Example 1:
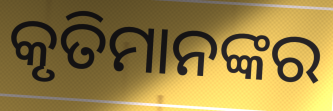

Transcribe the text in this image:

କୃତିମାନଙ୍କର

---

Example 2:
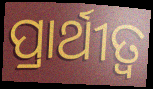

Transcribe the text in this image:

ପ୍ରାର୍ଥୀତ୍ଵ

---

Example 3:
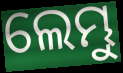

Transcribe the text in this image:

ଲେମ୍ଭୁ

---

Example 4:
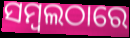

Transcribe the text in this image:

ସମ୍ବଲଠାରେ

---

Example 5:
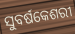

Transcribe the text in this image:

ସୁବର୍ଷକେଶରୀ